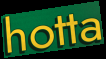
hotta